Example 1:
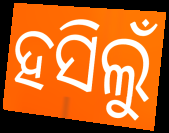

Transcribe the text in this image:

ହସିଲୁଁ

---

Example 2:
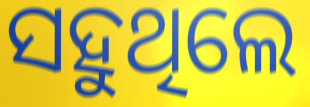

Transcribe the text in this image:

ସହୁଥିଲେ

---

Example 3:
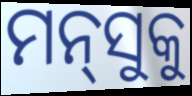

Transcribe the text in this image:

ମନ୍‌ସୁକୁ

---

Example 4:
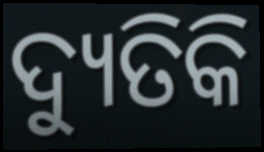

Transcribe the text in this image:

ଦ୍ୟୁତିକି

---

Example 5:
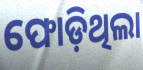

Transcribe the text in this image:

ଫୋଡ଼ିଥିଲା